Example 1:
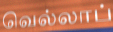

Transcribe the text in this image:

வெல்லாப்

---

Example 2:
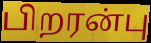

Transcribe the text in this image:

பிறரன்பு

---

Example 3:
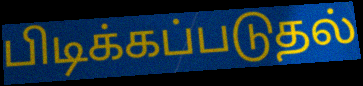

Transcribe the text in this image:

பிடிக்கப்படுதல்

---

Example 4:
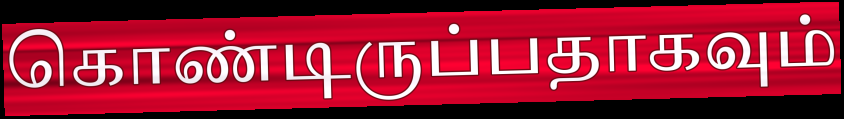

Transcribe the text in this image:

கொண்டிருப்பதாகவும்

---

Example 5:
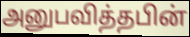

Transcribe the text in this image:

அனுபவித்தபின்